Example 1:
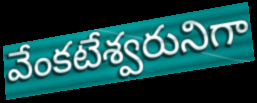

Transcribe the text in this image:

వేంకటేశ్వరునిగా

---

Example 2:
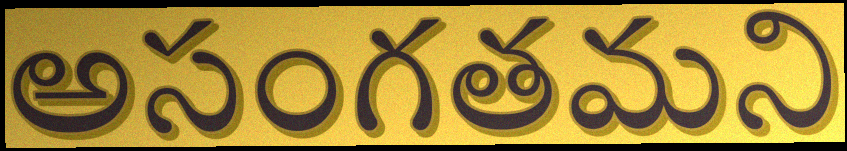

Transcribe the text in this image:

అసంగతమని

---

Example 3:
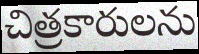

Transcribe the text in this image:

చిత్రకారులను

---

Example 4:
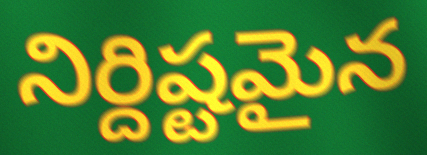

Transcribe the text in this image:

నిర్దిష్టమైన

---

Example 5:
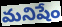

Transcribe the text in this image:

మనిషేం